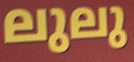
ലുലു